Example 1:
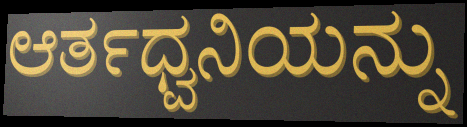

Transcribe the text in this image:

ಆರ್ತಧ್ವನಿಯನ್ನು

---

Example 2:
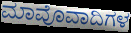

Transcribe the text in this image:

ಮಾವೊವಾದಿಗಳ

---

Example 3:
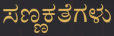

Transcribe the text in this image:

ಸಣ್ಣಕತೆಗಳು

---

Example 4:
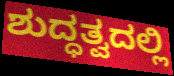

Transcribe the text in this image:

ಶುದ್ಧತ್ವದಲ್ಲಿ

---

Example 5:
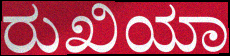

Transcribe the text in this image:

ರುಖಿಯಾ